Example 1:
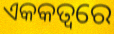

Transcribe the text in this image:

ଏକକତ୍ୱରେ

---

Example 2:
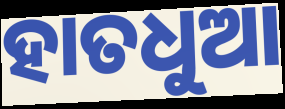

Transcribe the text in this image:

ହାତଧୁଆ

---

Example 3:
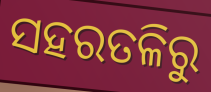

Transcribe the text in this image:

ସହରତଳିରୁ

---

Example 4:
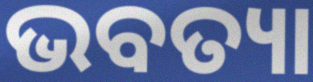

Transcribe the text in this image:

ଭବତ୍ୟା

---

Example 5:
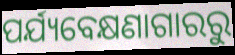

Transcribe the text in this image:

ପର୍ଯ୍ୟବେକ୍ଷଣାଗାରରୁ